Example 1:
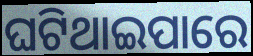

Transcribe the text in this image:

ଘଟିଥାଇପାରେ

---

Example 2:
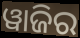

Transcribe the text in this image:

ୱାଜିର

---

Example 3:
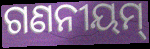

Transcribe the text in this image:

ଗଣନୀୟମ୍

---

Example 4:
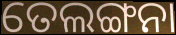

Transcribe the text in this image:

ତେଲଙ୍ଗନା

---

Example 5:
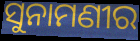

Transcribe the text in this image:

ସୁନାମଣୀର